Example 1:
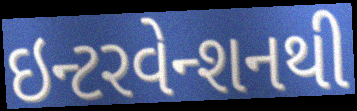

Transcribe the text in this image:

ઇન્ટરવેન્શનથી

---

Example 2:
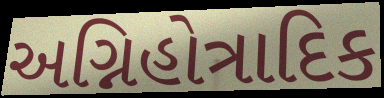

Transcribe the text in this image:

અગ્નિહોત્રાદિક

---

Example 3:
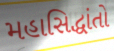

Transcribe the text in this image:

મહાસિદ્ધાંતો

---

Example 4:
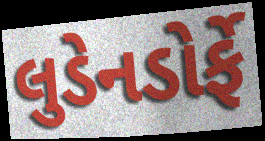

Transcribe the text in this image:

લુડેનડોર્ફે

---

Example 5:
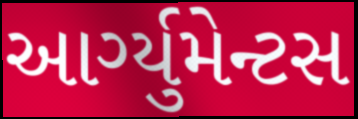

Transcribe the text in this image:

આર્ગ્યુમેન્ટસ